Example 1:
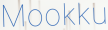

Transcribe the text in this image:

Mookku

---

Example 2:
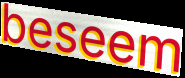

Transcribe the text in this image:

beseem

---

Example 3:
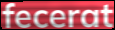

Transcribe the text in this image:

fecerat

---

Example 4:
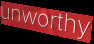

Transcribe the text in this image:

unworthy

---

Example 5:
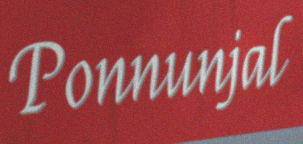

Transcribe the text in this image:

Ponnunjal